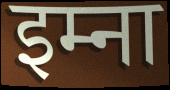
इम्ना